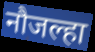
नौजल्हा